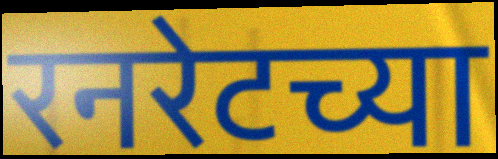
रनरेटच्या